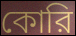
কোরি